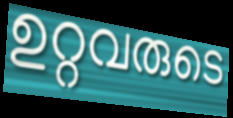
ഉറ്റവരുടെ